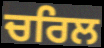
ਚਰਿਲ